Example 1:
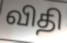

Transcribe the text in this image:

விதி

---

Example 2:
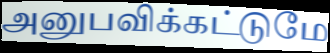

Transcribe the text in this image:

அனுபவிக்கட்டுமே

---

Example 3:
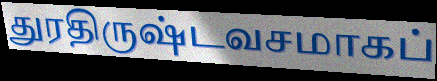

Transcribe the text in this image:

துரதிருஷ்டவசமாகப்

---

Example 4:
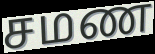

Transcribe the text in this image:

சமண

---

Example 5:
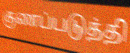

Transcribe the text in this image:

குணப்படுத்தி